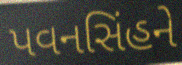
પવનસિંહને